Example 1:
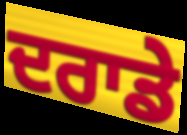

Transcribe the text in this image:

ਦਰਾਡੇ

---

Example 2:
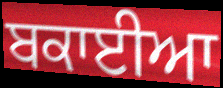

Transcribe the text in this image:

ਬਕਾਈਆ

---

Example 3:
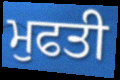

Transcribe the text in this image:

ਮੁਫਤੀ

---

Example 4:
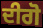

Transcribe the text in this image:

ਦੀਗੋ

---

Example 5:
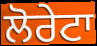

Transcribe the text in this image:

ਲੋਰੇਟਾ